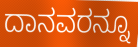
ದಾನವರನ್ನೂ